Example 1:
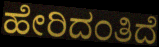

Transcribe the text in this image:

ಹೇರಿದಂತಿದೆ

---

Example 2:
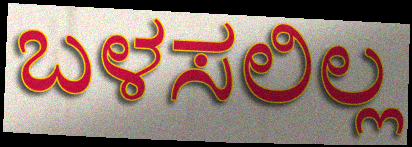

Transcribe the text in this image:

ಬಳಸಲಿಲ್ಲ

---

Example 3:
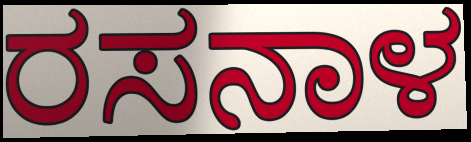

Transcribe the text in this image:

ರಸನಾಳ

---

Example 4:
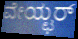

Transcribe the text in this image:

ವೇಯ್ಟರ್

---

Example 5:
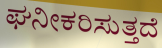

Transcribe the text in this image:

ಘನೀಕರಿಸುತ್ತದೆ